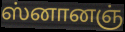
ஸ்னானஞ்